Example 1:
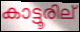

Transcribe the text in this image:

കാട്ടൂരില്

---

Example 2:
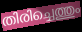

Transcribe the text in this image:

തിരിച്ചെത്തും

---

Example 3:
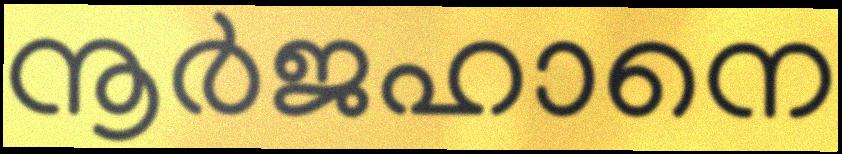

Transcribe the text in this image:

നൂർജഹാനെ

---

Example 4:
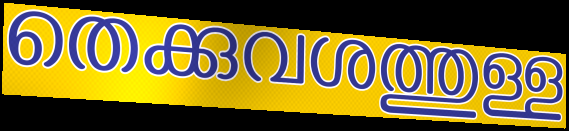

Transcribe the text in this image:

തെക്കുവശത്തുള്ള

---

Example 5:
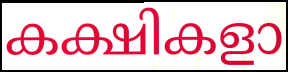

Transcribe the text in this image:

കക്ഷികളാ